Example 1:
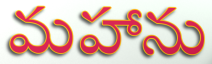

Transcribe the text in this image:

మహాను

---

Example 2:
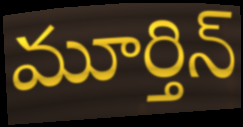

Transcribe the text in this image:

మూర్తిన్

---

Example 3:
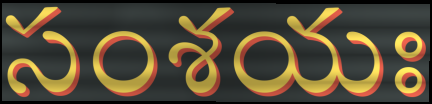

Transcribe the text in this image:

సంశయః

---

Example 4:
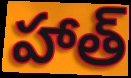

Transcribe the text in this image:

హాత్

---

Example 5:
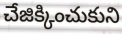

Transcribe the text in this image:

చేజిక్కించుకుని